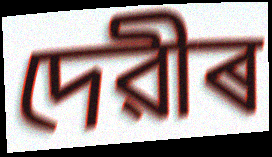
দেৱীৰ